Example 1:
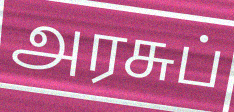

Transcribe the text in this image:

அரசுப்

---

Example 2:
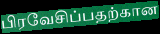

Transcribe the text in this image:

பிரவேசிப்பதற்கான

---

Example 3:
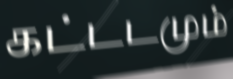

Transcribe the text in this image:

கட்டடமும்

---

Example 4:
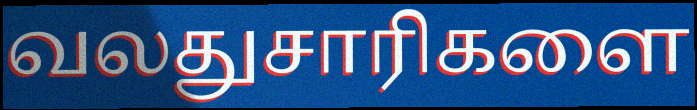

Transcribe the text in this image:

வலதுசாரிகளை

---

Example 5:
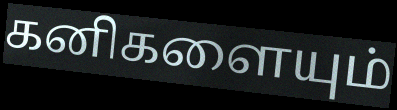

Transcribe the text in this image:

கனிகளையும்